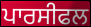
ਪਾਰਸੀਫਲ